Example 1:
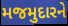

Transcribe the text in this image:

મજમુદારને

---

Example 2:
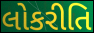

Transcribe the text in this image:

લોકરીતિ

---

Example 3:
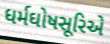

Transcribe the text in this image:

ધર્મઘોષસૂરિએ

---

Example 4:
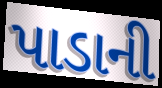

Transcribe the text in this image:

પાડાની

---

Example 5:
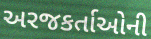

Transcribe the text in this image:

અરજકર્તાઓની